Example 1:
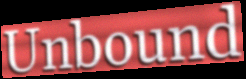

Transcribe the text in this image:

Unbound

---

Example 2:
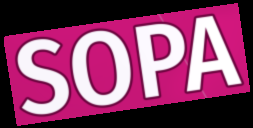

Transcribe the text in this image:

SOPA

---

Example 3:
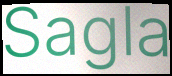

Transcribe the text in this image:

Sagla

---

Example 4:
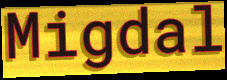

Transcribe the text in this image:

Migdal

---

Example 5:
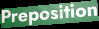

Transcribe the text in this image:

Preposition